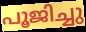
പൂജിച്ചു